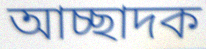
আচ্ছাদক